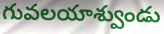
గువలయాశ్వుండు